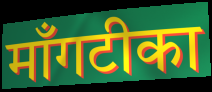
माँगटीका